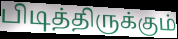
பிடித்திருக்கும்